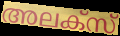
അലക്സ്